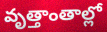
వృత్తాంతాల్లో